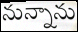
నున్నాను